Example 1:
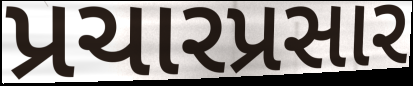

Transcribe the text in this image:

પ્રચારપ્રસાર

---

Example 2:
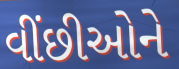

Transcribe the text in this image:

વીંછીઓને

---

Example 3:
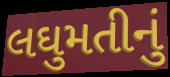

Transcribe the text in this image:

લઘુમતીનું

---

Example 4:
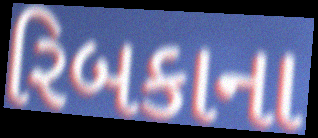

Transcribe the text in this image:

રિબકાના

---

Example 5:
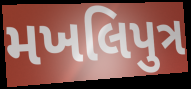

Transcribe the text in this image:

મખલિપુત્ર